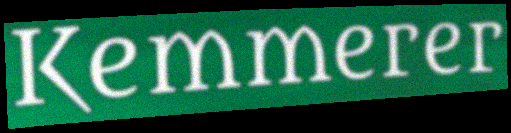
Kemmerer